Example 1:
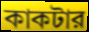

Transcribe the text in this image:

কাকটার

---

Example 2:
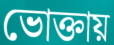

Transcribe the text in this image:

ভোক্তায়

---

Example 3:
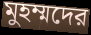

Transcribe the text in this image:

মুহম্মদের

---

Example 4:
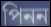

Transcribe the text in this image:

পিনন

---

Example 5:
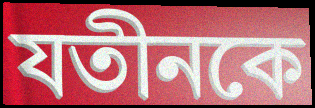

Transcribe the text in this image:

যতীনকে